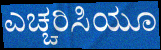
ಎಚ್ಚರಿಸಿಯೂ